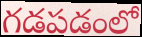
గడపడంలో